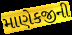
માણેકજીની